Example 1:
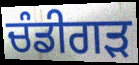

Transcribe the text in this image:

ਚੰਡੀਗਡ਼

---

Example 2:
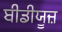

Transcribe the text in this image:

ਬੀਡੀਯੂਜ਼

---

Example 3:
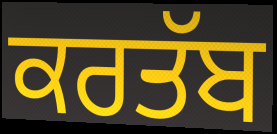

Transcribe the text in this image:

ਕਰਤੱਬ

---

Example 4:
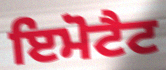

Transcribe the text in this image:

ਇਮੋਟੈਟ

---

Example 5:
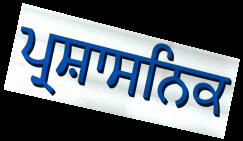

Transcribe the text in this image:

ਪ੍ਰਸ਼ਾਸਨਿਕ